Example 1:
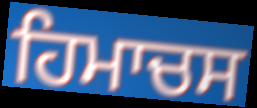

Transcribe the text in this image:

ਹਿਮਾਚਸ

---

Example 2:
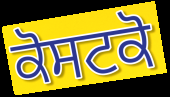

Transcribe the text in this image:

ਕੋਸਟਕੋ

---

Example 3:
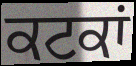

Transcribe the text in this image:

ਕਟਕਾਂ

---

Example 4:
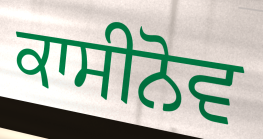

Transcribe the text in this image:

ਕਾਸੀਨੋਵ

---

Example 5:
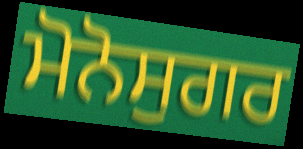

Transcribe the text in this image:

ਮੋਨੋਸੁਗਰ